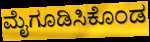
ಮೈಗೂಡಿಸಿಕೊಂಡ